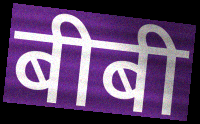
बीबी